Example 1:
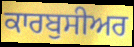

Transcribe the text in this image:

ਕਾਰਬੁਸੀਅਰ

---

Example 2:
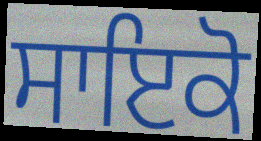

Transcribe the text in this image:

ਸਾਇਕੋ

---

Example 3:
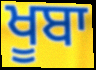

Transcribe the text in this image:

ਖੂਬਾ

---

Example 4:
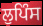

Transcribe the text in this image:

ਲੁਪਿੰਸ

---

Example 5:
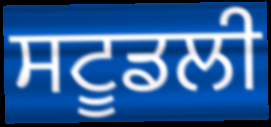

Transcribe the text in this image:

ਸਟੂਡਲੀ